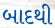
બાદથી